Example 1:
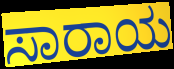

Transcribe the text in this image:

ಸಾರಾಯ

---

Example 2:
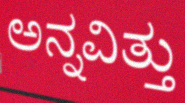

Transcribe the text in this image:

ಅನ್ನವಿತ್ತು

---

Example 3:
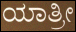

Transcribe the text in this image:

ಯಾತ್ರೀ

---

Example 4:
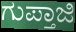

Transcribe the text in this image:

ಗುಪ್ತಾಜಿ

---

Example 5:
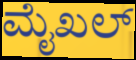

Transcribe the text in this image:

ಮೈಖಲ್